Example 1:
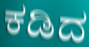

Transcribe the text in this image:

ಕಡಿದ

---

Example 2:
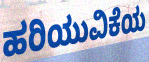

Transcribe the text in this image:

ಹರಿಯುವಿಕೆಯ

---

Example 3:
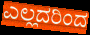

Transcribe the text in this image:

ಎಲ್ಲದರಿಂದ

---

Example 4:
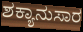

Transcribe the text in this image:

ಶಕ್ಯಾನುಸಾರ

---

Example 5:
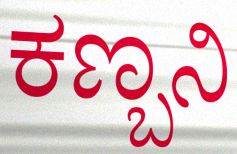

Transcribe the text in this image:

ಕಣ್ಬನಿ